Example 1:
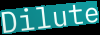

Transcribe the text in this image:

Dilute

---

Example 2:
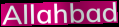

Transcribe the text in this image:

Allahbad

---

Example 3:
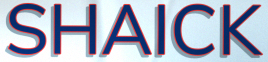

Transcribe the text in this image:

SHAICK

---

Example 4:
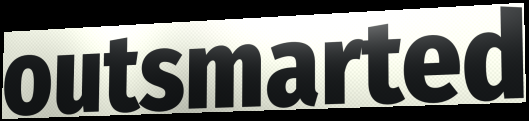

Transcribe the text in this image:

outsmarted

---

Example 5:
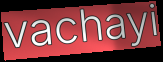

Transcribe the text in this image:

vachayi